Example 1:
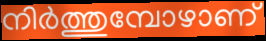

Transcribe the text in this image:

നിർത്തുമ്പോഴാണ്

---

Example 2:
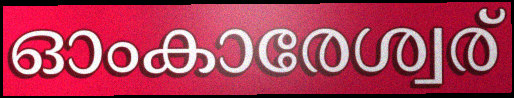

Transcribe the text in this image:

ഓംകാരേശ്വര്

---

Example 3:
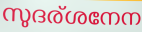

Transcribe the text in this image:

സുദര്ശനേന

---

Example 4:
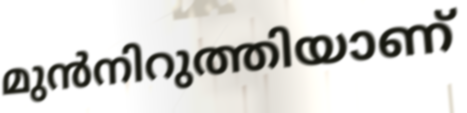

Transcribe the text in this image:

മുൻനിറുത്തിയാണ്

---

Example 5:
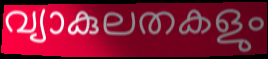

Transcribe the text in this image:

വ്യാകുലതകളും